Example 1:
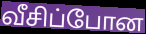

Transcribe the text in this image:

வீசிப்போன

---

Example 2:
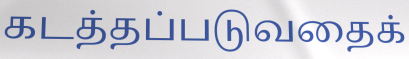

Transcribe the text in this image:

கடத்தப்படுவதைக்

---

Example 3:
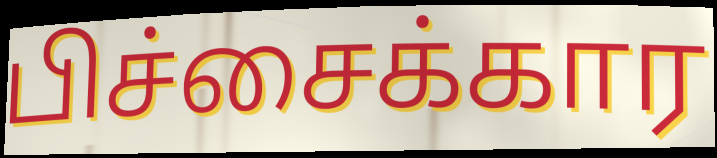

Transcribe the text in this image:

பிச்சைக்கார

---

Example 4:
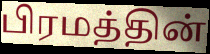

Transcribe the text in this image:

பிரமத்தின்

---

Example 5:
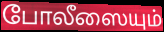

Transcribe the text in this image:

போலீஸையும்